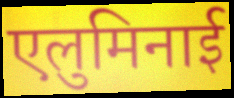
एलुमिनाई